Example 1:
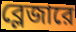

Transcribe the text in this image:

ব্লেজারে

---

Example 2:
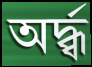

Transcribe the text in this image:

অর্দ্ধ্ব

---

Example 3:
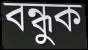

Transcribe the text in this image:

বন্ধুক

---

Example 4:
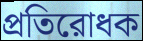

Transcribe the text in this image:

প্রতিরোধক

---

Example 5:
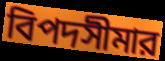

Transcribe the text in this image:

বিপদসীমার